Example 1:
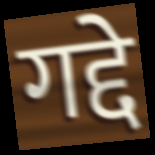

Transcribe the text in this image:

गद्दे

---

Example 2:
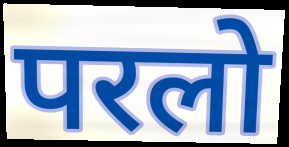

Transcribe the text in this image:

परलो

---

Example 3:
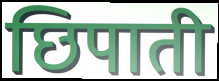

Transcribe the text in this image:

छिपाती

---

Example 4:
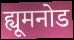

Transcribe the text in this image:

ह्यूमनोड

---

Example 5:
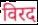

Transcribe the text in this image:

विरद